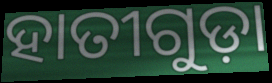
ହାତୀଗୁଡ଼ା